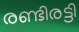
രണ്ടിരട്ടി